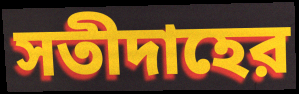
সতীদাহের